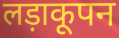
लड़ाकूपन